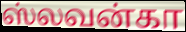
ஸ்லவன்கா